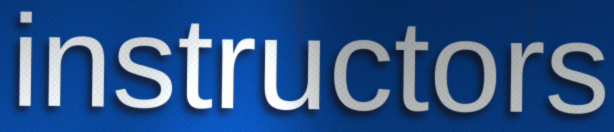
instructors